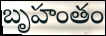
బృహంతం